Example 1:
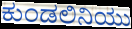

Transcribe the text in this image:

ಕುಂಡಲಿನಿಯು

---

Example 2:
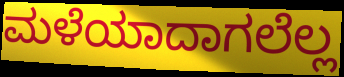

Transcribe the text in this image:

ಮಳೆಯಾದಾಗಲೆಲ್ಲ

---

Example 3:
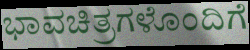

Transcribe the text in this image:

ಭಾವಚಿತ್ರಗಳೊಂದಿಗೆ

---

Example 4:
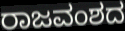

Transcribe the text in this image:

ರಾಜವಂಶದ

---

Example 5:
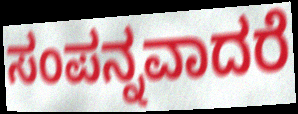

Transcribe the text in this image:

ಸಂಪನ್ನವಾದರೆ